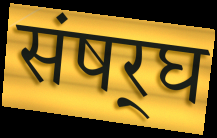
संषर्घ